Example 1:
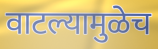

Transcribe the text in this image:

वाटल्यामुळेच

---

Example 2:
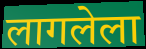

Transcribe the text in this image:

लागलेला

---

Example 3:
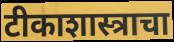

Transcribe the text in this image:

टीकाशास्त्राचा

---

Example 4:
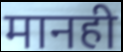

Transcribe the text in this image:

मानही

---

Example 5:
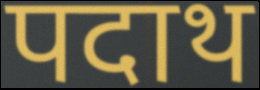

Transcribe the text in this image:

पदाथ